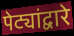
पेट्यांद्वारे